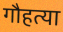
गौहत्या